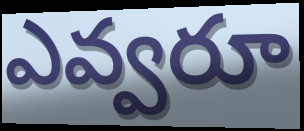
ఎవ్వరూ